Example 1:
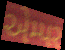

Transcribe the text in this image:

એમ્પર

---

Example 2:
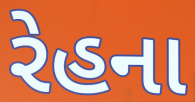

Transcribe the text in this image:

રેહના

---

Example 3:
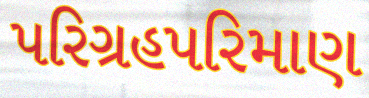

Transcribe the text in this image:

પરિગ્રહપરિમાણ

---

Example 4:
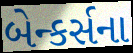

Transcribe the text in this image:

બેન્કર્સના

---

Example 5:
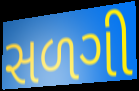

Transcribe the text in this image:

સળગી